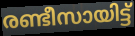
രണ്ടീസായിട്ട്